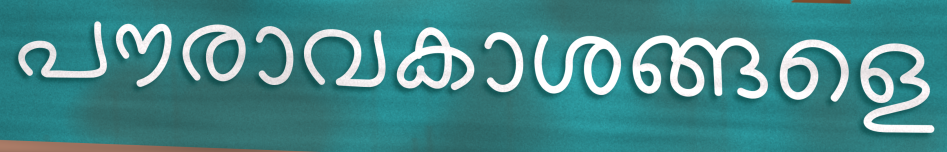
പൗരാവകാശങ്ങളെ